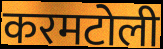
करमटोली